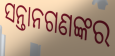
ସନ୍ତାନଗଣଙ୍କର